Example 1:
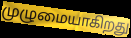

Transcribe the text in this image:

முழுமையாகிறது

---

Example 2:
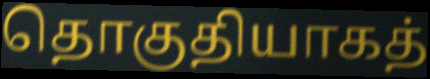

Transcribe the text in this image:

தொகுதியாகத்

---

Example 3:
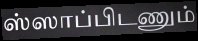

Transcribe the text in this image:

ஸ்ஸாப்பிடணும்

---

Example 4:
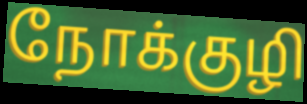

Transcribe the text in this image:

நோக்குழி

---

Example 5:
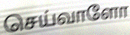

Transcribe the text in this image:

செய்வாளோ